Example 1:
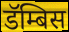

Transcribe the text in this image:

डॅम्बिस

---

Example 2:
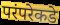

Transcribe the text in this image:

परंपरेकडे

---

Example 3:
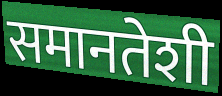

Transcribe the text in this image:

समानतेशी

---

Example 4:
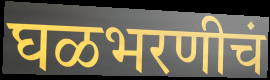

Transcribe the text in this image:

घळभरणीचं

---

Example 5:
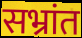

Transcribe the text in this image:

सभ्रांत